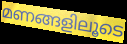
മണങ്ങളിലൂടെ